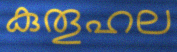
കുതൂഹല